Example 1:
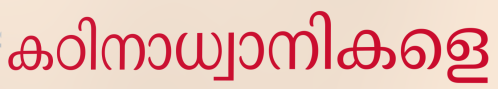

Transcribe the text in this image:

കഠിനാധ്വാനികളെ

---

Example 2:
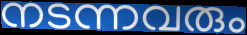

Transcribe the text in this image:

നടന്നവരും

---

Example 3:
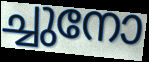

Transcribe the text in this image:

ച്ചുനോ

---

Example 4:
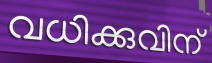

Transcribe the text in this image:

വധിക്കുവിന്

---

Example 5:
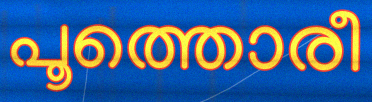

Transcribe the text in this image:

പൂത്തൊരീ